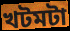
খটমটা